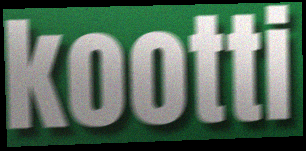
kootti